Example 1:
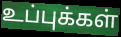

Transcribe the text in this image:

உப்புக்கள்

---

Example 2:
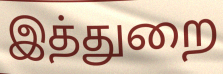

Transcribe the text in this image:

இத்துறை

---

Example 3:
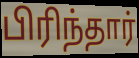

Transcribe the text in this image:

பிரிந்தார்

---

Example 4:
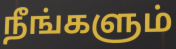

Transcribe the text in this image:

நீங்களும்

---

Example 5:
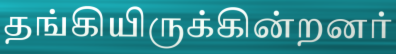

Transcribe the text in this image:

தங்கியிருக்கின்றனர்